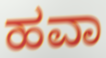
ಹವಾ